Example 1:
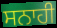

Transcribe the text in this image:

ਸਨਾਹੀ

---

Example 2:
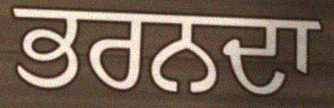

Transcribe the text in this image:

ਭਰਨਦਾ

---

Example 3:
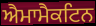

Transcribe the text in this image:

ਐਮਾਮੈਕਟਿਨ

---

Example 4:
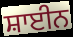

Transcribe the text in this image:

ਸ਼ਾਈਨ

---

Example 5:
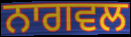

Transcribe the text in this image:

ਨਾਗਵਲ